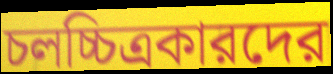
চলচ্চিত্রকারদের